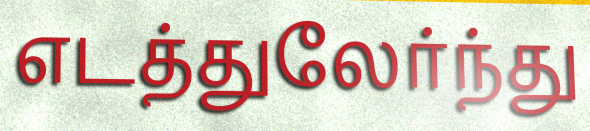
எடத்துலேர்ந்து